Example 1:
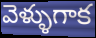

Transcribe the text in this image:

వెళ్ళుగాక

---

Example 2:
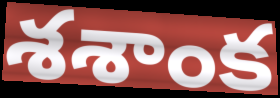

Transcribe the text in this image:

శశాంక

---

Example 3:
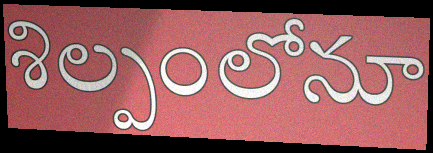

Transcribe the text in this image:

శిల్పంలోనూ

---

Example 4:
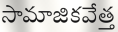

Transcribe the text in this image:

సామాజికవేత్త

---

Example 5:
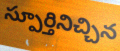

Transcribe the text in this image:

స్పూర్తినిచ్చిన